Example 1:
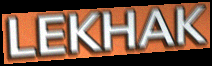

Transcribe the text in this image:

LEKHAK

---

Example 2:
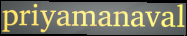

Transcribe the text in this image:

priyamanaval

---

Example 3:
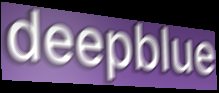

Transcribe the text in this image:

deepblue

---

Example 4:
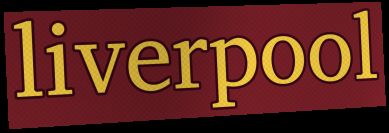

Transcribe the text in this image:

liverpool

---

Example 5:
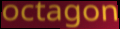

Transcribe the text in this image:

octagon